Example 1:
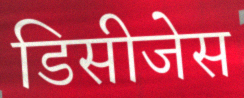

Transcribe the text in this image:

डिसीजेस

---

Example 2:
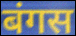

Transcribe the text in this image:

बंगस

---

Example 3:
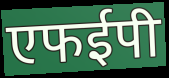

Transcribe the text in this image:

एफईपी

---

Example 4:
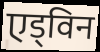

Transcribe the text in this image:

एड्विन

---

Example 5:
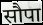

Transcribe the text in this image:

सौपा